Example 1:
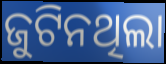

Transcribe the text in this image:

ଜୁଟିନଥିଲା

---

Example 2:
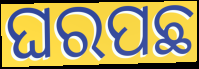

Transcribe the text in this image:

ଘରପଛ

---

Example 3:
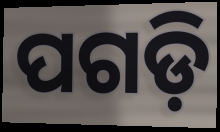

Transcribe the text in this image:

ପଗଡ଼ି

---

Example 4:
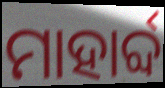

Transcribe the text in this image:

ମାହାର୍ବ୍ଦ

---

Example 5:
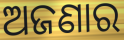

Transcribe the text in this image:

ଅଜଣାର